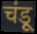
चंडू